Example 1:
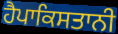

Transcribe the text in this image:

ਹੈਪਾਕਿਸਤਾਨੀ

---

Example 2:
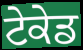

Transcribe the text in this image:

ਟੇਕੇਡ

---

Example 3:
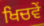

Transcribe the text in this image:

ਖਿਚਵੇਂ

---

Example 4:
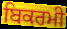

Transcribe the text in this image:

ਬਿਕਰਮੀ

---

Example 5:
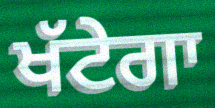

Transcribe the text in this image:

ਖੱਟੇਗਾ